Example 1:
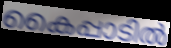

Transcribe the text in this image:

കൈപ്പാടിൽ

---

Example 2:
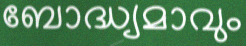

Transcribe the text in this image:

ബോദ്ധ്യമാവും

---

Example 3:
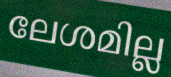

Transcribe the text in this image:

ലേശമില്ല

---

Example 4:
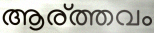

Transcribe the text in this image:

ആര്ത്തവം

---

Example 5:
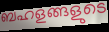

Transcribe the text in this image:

ബഹളങ്ങളുടെ